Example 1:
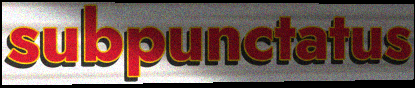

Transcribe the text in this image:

subpunctatus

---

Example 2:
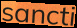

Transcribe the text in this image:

sancti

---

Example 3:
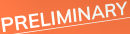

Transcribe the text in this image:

PRELIMINARY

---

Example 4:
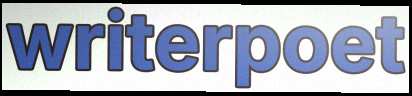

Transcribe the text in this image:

writerpoet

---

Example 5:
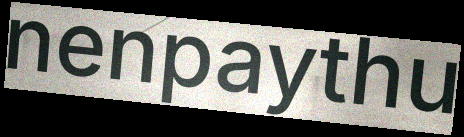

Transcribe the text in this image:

nenpaythu